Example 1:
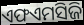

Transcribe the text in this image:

ଏଫଏମସିଜି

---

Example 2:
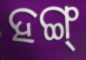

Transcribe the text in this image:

ହଙ୍ଗ୍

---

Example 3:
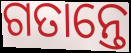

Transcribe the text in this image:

ଗତାନ୍ତେ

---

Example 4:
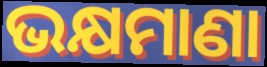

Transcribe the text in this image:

ଭକ୍ଷମାଣା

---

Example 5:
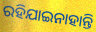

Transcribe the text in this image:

ରହିଯାଇନାହାନ୍ତି